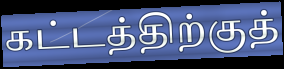
கட்டத்திற்குத்